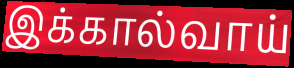
இக்கால்வாய்